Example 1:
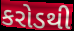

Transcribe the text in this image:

કરોડથી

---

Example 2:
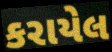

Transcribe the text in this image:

કરાયેલ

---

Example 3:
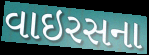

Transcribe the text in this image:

વાઇરસના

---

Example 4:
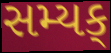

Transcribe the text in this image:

સમ્યક્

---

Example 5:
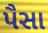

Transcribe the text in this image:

પૈસા